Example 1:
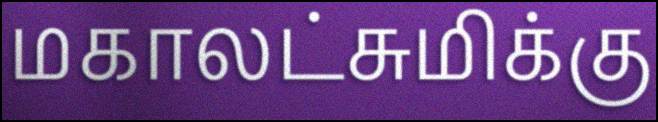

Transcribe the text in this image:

மகாலட்சுமிக்கு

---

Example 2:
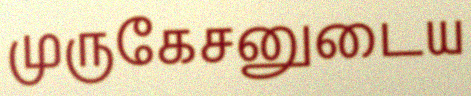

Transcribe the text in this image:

முருகேசனுடைய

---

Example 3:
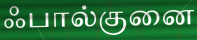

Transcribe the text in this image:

ஃபால்குனை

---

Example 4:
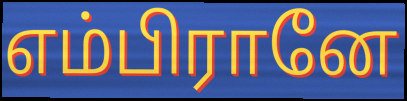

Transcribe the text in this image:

எம்பிரானே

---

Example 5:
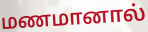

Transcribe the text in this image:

மணமானால்